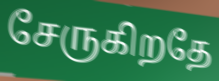
சேருகிறதே